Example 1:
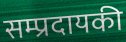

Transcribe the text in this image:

सम्प्रदायकी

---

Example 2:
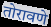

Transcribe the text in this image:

तोरावणे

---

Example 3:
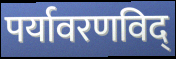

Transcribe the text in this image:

पर्यावरणविद्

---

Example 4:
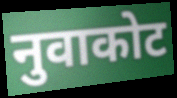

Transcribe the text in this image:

नुवाकोट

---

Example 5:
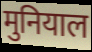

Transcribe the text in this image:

मुनियाल